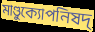
মাণ্ডুক্যোপনিষদ্